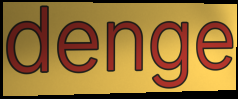
denge